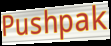
Pushpak